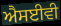
ਐਸਈਵੀ